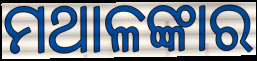
ମଥାଳଙ୍କାର